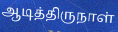
ஆடித்திருநாள்